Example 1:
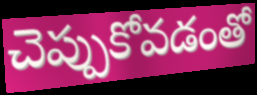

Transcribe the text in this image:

చెప్పుకోవడంతో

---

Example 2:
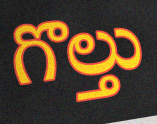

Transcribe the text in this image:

గొల్తు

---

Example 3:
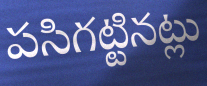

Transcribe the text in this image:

పసిగట్టినట్లు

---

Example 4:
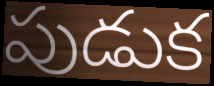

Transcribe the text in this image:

పుడుక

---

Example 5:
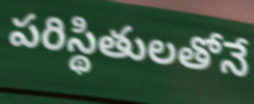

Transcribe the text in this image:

పరిస్థితులతోనే